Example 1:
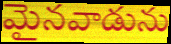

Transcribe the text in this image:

మైనవాడును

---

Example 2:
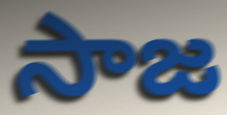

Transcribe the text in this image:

సాజ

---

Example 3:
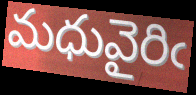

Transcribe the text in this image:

మధువైరిఁ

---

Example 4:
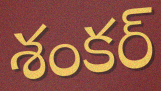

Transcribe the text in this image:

శంకర్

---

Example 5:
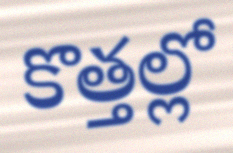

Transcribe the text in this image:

కొత్తల్లో